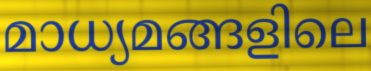
മാധ്യമങ്ങളിലെ